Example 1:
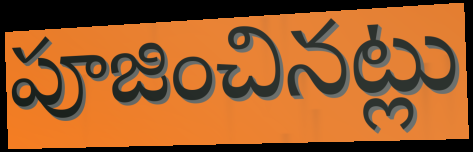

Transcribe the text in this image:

పూజించినట్లు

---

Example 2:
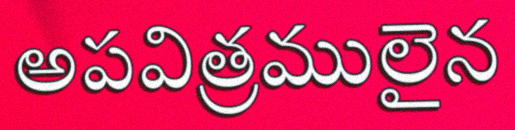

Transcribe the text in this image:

అపవిత్రములైన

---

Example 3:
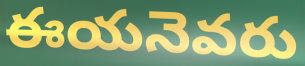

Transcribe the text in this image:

ఈయనెవరు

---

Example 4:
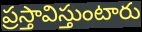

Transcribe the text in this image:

ప్రస్తావిస్తుంటారు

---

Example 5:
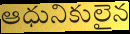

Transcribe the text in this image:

ఆధునికులైన